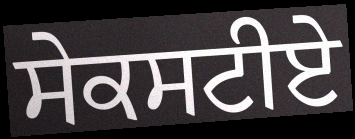
ਸੇਕਸਟੀਏ